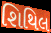
શિથિલ